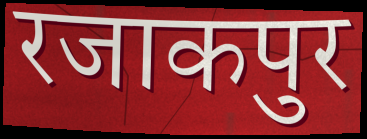
रजाकपुर